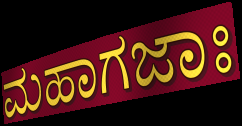
ಮಹಾಗಜಾಃ